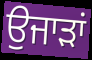
ਉਜਾੜਾਂ